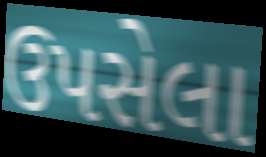
ઉપસેલા